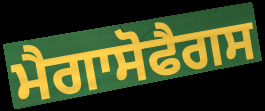
ਮੈਗਾਸੋਫੈਗਸ